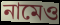
নামেও